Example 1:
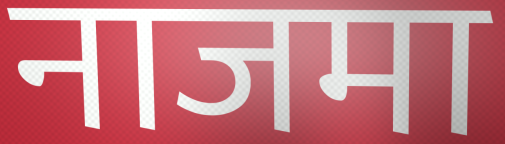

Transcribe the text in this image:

नाजमा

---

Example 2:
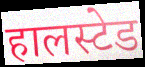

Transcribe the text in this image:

हालस्टेड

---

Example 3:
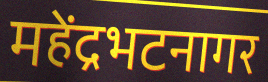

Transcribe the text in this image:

महेंद्रभटनागर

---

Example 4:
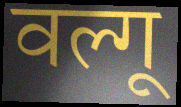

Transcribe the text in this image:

वल्गू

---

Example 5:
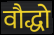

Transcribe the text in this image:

वौद्धो